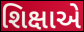
શિક્ષાએ